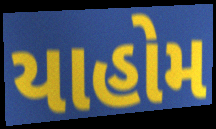
યાહોમ